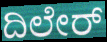
ದಿಲೇರ್